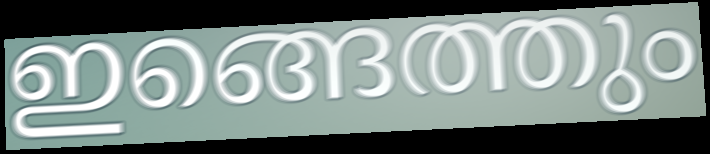
ഇങ്ങെത്തും